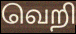
வெறி